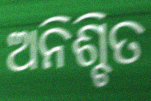
ଅନିଶ୍ଚିତ